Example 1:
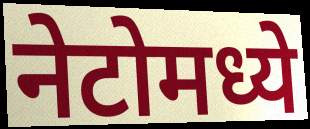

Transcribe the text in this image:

नेटोमध्ये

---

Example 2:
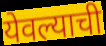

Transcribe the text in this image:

येवल्याची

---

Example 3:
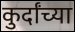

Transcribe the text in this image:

कुर्दांच्या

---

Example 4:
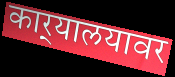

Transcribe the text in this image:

कार्यालयावर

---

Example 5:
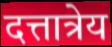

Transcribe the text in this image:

दत्तात्रेय